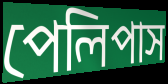
পেলিপাস